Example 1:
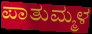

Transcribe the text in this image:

ಪಾತುಮ್ಮಳ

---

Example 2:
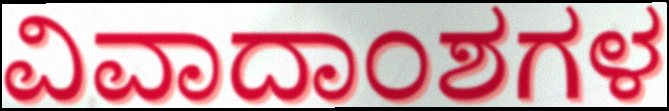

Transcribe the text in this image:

ವಿವಾದಾಂಶಗಳ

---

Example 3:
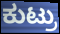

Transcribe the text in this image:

ಕುಟ್ರು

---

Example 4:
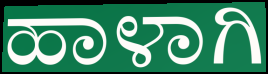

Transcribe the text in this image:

ಹಾಳಾಗಿ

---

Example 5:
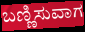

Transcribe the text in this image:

ಬಣ್ಣಿಸುವಾಗ